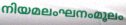
നിയമലംഘനംമൂലം